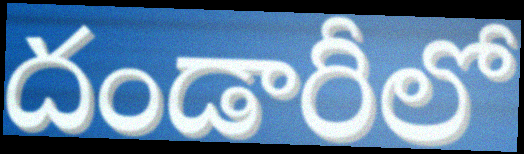
దండారీలో